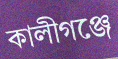
কালীগঞ্জে